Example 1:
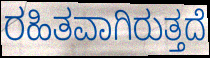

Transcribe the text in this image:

ರಹಿತವಾಗಿರುತ್ತದೆ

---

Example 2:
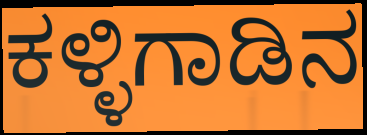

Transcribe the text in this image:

ಕಳ್ಳಿಗಾಡಿನ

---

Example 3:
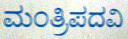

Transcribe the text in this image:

ಮಂತ್ರಿಪದವಿ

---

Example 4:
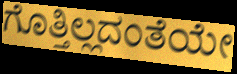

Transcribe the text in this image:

ಗೊತ್ತಿಲ್ಲದಂತೆಯೇ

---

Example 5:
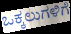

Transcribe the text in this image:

ಒಕ್ಕಲುಗಳಿಗೆ